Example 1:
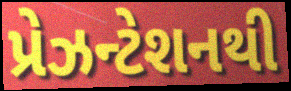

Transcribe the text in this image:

પ્રેઝન્ટેશનથી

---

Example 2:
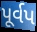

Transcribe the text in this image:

પૂર્વપ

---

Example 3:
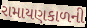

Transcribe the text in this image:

રામાયણકાળની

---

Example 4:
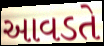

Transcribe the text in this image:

આવડતે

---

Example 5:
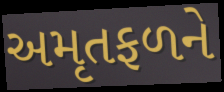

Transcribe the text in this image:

અમૃતફળને